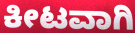
ಕೀಟವಾಗಿ